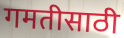
गमतीसाठी